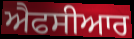
ਐਫਸੀਆਰ